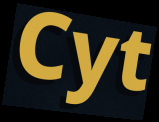
Cyt